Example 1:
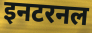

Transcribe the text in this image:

इनटरनल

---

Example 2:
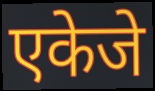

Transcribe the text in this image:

एकेजे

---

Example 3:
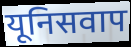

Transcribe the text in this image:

यूनिसवाप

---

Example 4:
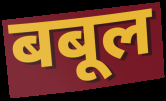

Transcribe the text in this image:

बबूल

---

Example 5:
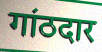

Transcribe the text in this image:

गांठदार